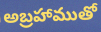
అబ్రహాముతో